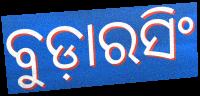
ବୁଡ଼ାରସିଂ